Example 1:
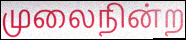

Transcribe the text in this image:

முலைநின்ற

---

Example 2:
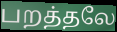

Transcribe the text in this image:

பறத்தலே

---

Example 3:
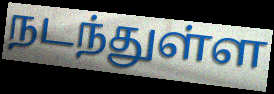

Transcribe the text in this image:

நடந்துள்ள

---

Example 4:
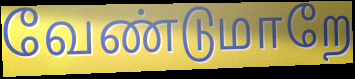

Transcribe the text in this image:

வேண்டுமாறே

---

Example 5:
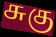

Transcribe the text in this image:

சுகு